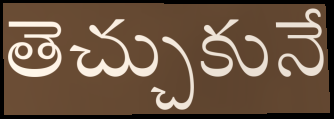
తెచ్చుకునే